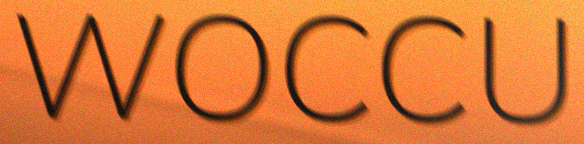
WOCCU